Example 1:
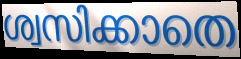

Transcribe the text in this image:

ശ്വസിക്കാതെ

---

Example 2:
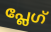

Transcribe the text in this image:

പ്ലേഗ്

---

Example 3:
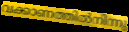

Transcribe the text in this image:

വക്കാണത്തിൽനിന്നു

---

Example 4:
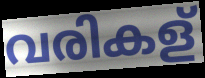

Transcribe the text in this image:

വരികള്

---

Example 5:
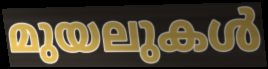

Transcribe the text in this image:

മുയലുകൾ